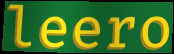
leero